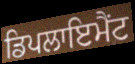
ਡਿਪਲਾਇਮੈਂਟ